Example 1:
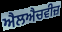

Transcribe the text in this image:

ਐਲਐਚਵੀਜ਼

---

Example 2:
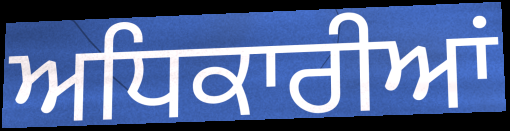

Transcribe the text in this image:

ਅਧਿਕਾਰੀਆਂ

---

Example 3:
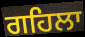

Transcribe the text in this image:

ਗਹਿਲਾ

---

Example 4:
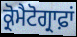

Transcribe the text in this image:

ਕ੍ਰੋਮੈਟੋਗ੍ਰਾਫ਼ਾਂ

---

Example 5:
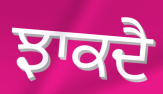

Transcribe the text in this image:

ਝਾਕਦੈ